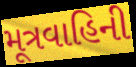
મૂત્રવાહિની